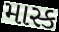
માસ્ક